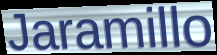
Jaramillo